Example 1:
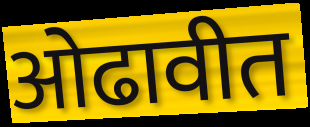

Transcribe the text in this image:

ओढावीत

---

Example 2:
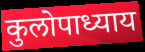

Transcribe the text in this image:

कुलोपाध्याय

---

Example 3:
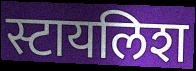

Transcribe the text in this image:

स्टायलिश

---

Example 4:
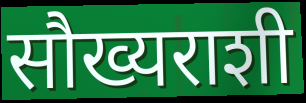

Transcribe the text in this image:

सौख्यराशी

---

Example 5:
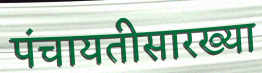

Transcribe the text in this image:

पंचायतीसारख्या